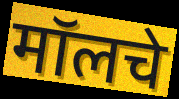
मॉलचे